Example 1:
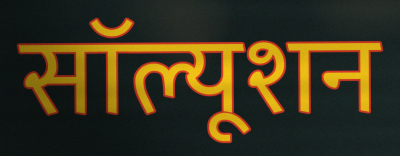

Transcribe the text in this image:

सॉल्यूशन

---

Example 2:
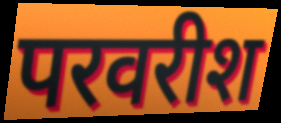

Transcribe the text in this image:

परवरीश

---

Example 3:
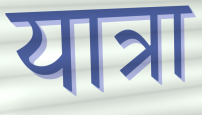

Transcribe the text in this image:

यात्रा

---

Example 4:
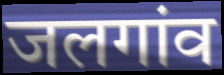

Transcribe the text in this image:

जलगांव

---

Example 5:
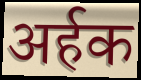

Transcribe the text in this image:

अर्हक